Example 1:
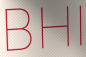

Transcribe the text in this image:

BHI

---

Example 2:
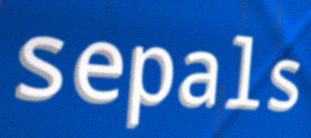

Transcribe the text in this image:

sepals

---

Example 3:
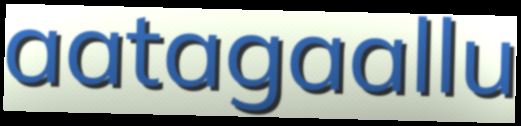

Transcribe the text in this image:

aatagaallu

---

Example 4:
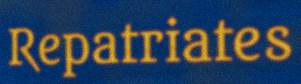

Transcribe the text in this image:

Repatriates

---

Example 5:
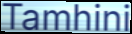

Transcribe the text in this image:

Tamhini